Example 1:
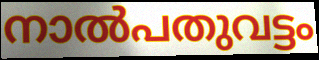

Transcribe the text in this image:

നാൽപതുവട്ടം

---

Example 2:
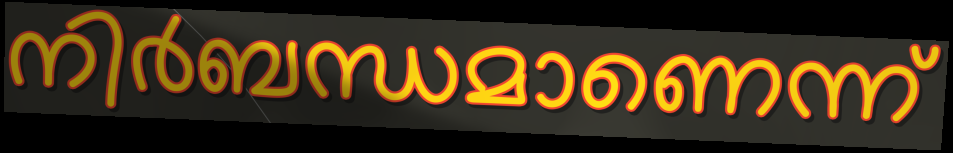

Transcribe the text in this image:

നിർബന്ധമാണെന്ന്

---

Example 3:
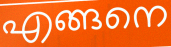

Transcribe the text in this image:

എങ്ങനെ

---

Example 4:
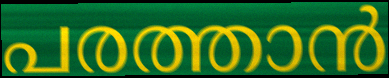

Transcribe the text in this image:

പരത്താൻ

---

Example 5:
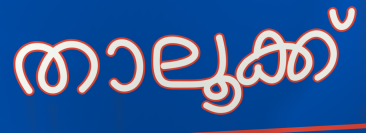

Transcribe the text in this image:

താലൂക്ക്